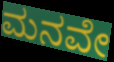
ಮನವೇ